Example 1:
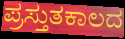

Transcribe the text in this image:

ಪ್ರಸ್ತುತಕಾಲದ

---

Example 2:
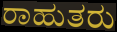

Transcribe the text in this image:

ರಾಹುತರು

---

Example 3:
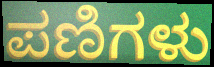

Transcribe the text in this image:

ಪಣಿಗಳು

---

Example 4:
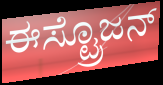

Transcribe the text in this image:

ಈಸ್ಟ್ರೊಜನ್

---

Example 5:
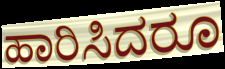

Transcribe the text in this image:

ಹಾರಿಸಿದರೂ